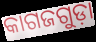
କାଗଜଗୁଡ଼ା